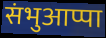
संभुआप्पा